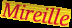
Mireille